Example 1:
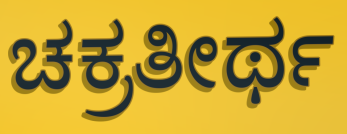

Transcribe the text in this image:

ಚಕ್ರತೀರ್ಥ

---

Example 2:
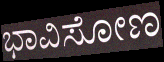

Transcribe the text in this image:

ಭಾವಿಸೋಣ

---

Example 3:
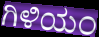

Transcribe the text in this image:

ಗಿಳಿಯಂ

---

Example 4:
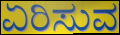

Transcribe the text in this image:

ಏರಿಸುವ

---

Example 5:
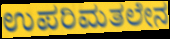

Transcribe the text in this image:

ಉಪರಿಮತಲೇನ